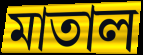
মাতাল